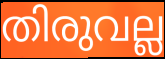
തിരുവല്ല